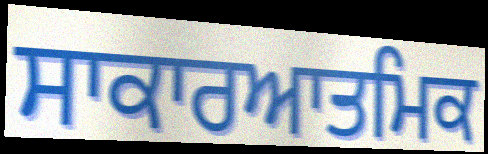
ਸਾਕਾਰਆਤਮਿਕ